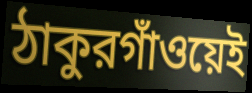
ঠাকুরগাঁওয়েই